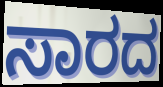
ಸಾರದ